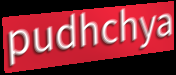
pudhchya